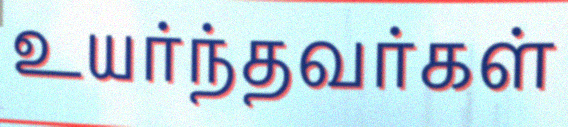
உயர்ந்தவர்கள்